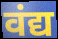
वंद्य